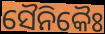
ସୈନିକୈଃ